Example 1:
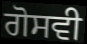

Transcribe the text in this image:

ਗੋਸਵੀ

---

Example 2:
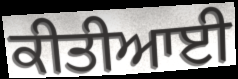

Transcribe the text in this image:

ਕੀਤੀਆਈ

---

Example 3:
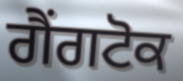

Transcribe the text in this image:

ਗੈਂਗਟੋਕ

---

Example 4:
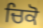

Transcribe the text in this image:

ਚਿਕੋ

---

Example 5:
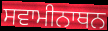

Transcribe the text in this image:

ਸਵਾਮੀਨਾਥਨ